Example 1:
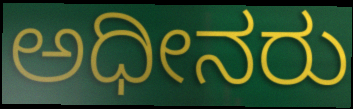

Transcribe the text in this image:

ಅಧೀನರು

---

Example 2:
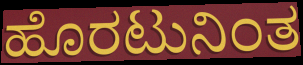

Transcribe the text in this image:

ಹೊರಟುನಿಂತ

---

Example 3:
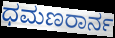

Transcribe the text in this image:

ಧಮಣರಾರ್ನ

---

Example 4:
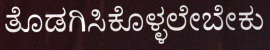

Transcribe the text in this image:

ತೊಡಗಿಸಿಕೊಳ್ಳಲೇಬೇಕು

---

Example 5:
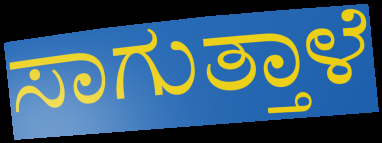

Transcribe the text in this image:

ಸಾಗುತ್ತಾಳೆ